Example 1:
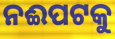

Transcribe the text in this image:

ନଈପଟକୁ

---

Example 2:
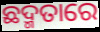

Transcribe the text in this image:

ଛଦ୍ମତାରେ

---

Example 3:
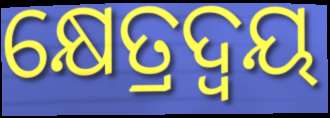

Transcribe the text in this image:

କ୍ଷେତ୍ରଦ୍ଵୟ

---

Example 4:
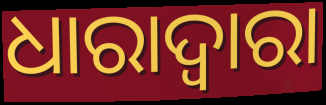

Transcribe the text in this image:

ଧାରାଦ୍ୱାରା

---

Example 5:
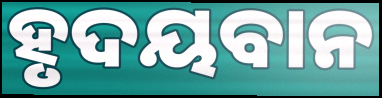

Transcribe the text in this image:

ହୃଦୟବାନ